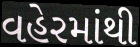
વહેરમાંથી